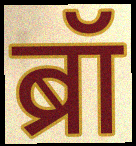
ब्रॉ